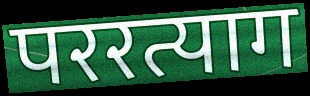
पररत्याग